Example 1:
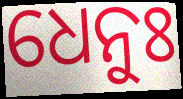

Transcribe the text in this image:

ଧେନୁଃ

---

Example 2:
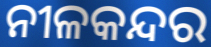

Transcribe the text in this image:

ନୀଳକନ୍ଦର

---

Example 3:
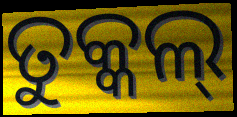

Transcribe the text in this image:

ତୁକ୍କଲ୍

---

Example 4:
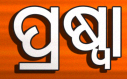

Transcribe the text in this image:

ପ୍ରଷ୍ୱା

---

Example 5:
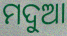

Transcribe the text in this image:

ମଦୁଆ